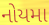
નોયમા